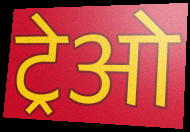
ट्रेओ